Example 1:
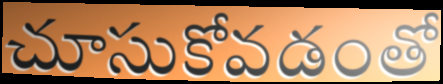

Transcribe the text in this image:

చూసుకోవడంతో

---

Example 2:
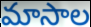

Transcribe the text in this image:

మాసాల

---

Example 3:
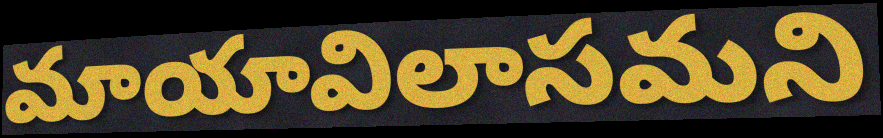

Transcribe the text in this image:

మాయావిలాసమని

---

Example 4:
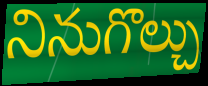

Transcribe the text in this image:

నినుగొల్చు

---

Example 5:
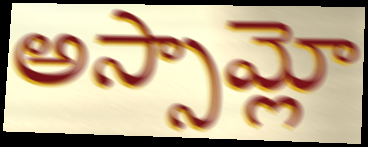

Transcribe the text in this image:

అస్సామ్లో